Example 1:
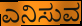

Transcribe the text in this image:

ಎನಿಸುವ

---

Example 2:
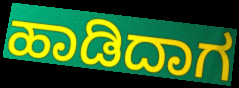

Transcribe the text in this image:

ಹಾಡಿದಾಗ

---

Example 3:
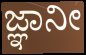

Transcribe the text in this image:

ಜ್ಞಾನೀ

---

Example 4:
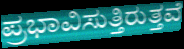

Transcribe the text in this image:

ಪ್ರಭಾವಿಸುತ್ತಿರುತ್ತವೆ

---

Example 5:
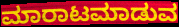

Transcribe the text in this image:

ಮಾರಾಟಮಾಡುವ